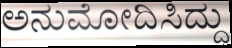
ಅನುಮೋದಿಸಿದ್ದು